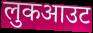
लुकआउट